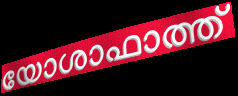
യോശാഫാത്ത്